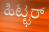
ಹಿಟ್ಟರ್